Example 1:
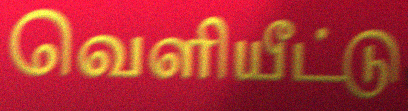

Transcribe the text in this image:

வெளியீட்டு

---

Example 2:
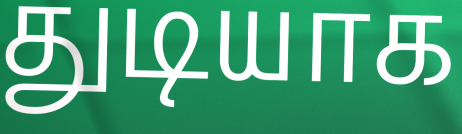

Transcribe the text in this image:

துடியாக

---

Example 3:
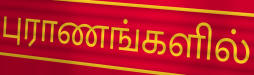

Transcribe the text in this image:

புராணங்களில்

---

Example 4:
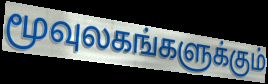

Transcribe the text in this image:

மூவுலகங்களுக்கும்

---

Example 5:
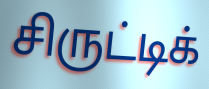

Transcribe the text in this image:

சிருட்டிக்